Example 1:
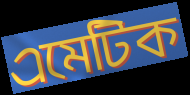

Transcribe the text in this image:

এমেটিক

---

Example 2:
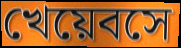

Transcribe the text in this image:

খেয়েবসে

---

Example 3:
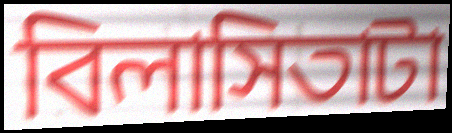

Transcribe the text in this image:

বিলাসিতাটা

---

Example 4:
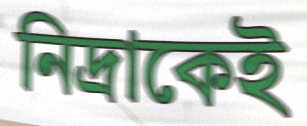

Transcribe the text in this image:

নিদ্রাকেই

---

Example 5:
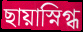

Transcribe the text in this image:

ছায়াস্নিগ্ধ